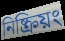
নিষ্ক্রিয়ং